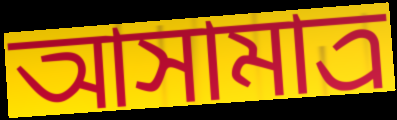
আসামাত্র